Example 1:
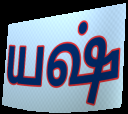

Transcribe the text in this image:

யஷ்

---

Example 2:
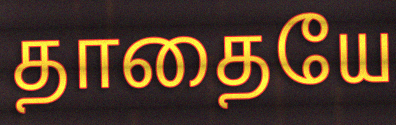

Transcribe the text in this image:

தாதையே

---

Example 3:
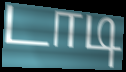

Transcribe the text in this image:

டாடி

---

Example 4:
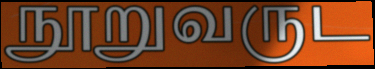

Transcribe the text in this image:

நூறுவருட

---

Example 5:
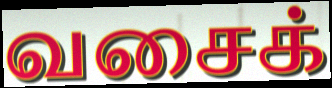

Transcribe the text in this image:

வசைக்